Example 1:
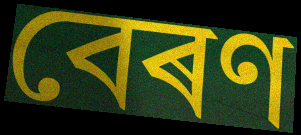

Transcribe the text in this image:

বেৰণ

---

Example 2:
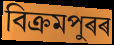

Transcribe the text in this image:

বিক্ৰমপুৰৰ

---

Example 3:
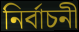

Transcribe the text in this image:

নিৰ্বাচনী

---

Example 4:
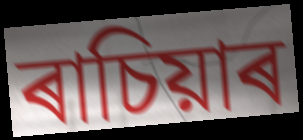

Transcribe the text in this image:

ৰাচিয়াৰ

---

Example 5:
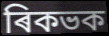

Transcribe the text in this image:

ৰিকভক